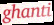
ghanti